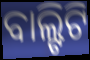
ବାଲ୍ଟିଟି